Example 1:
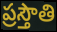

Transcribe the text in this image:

ప్రస్తౌతి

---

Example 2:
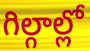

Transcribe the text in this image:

గిల్గాల్లో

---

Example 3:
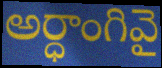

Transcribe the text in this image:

అర్ధాంగివై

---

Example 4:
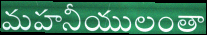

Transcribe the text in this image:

మహనీయులంతా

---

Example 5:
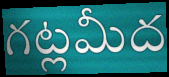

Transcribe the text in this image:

గట్లమీద